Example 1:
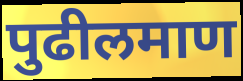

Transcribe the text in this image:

पुढीलमाण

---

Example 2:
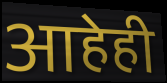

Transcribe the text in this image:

आहेही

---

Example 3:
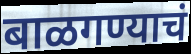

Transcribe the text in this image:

बाळगण्याचं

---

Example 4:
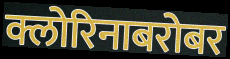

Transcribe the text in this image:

क्लोरिनाबरोबर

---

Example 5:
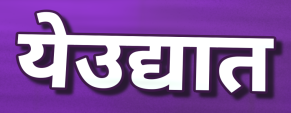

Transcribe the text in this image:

येउद्यात